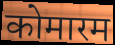
कोमारम